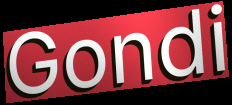
Gondi